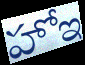
హోఇ